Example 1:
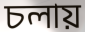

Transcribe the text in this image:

চলায়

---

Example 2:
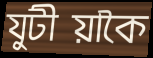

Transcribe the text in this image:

যুটীয়াকৈ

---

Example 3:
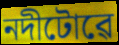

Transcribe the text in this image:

নদীটোৱে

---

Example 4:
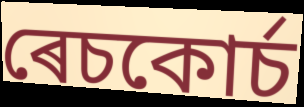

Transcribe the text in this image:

ৰেচকোৰ্চ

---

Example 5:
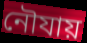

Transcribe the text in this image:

নৌযায়